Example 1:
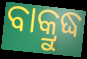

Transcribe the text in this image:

ବାକ୍ରୁଦ୍ଧ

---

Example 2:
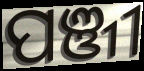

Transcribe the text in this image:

ପଞ୍ଜୀ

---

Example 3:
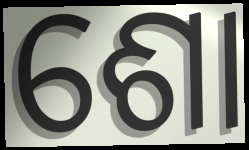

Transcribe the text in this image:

ଶୋ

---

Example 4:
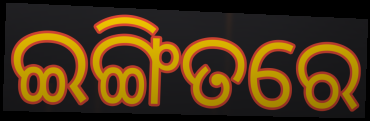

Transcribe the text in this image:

ଇଙ୍ଗିତରେ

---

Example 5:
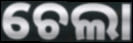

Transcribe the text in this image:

ଚେଲା